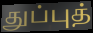
துப்புத்